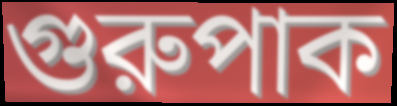
গুরুপাক